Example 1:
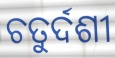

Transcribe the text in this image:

ଚତୁର୍ଦଶୀ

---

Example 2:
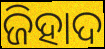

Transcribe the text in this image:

ଜିହାଦ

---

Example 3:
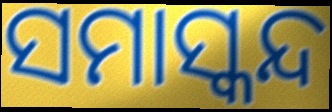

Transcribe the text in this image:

ସମାସ୍କନ୍ଦ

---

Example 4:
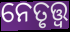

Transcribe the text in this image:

ନେତୃତ୍ତ୍ୱ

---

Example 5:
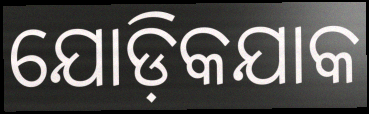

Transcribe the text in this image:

ଯୋଡ଼ିକଯାକ